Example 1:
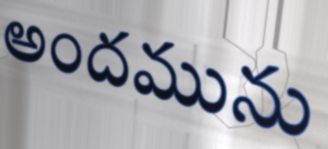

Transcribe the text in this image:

అందమును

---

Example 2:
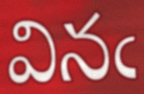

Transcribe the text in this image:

వినఁ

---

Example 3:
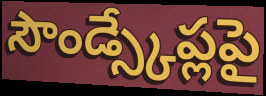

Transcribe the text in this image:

సౌండ్స్కేప్లపై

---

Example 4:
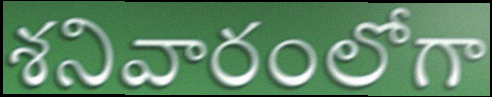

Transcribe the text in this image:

శనివారంలోగా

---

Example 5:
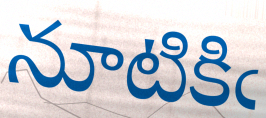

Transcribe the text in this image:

నూటికిఁ